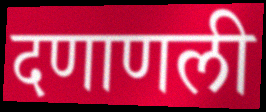
दणाणली